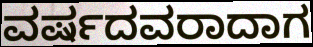
ವರ್ಷದವರಾದಾಗ